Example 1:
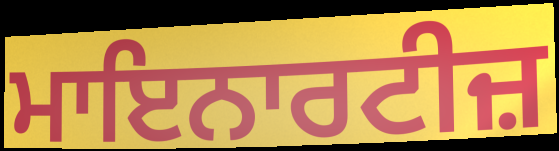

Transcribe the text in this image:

ਮਾਇਨਾਰਟੀਜ਼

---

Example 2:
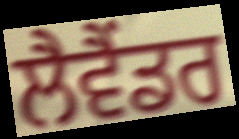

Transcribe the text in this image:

ਲੈਵੈਂਡਰ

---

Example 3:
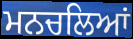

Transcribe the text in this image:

ਮਨਚਲਿਆਂ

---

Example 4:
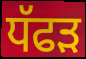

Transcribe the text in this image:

ਧੱਫੜ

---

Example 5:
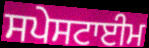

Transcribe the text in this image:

ਸਪੇਸਟਾਈਮ